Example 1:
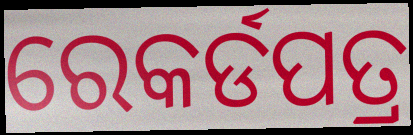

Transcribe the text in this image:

ରେକର୍ଡପତ୍ର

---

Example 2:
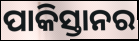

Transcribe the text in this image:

ପାକିସ୍ତାନର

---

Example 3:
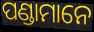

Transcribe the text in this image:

ପଣ୍ଡାମାନେ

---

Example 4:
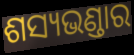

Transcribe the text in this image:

ଶସ୍ୟଭଣ୍ଡାର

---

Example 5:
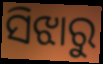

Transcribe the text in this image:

ସିଝାରୁ